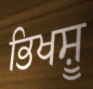
ਭਿਖਸ਼ੂ